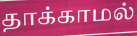
தாக்காமல்